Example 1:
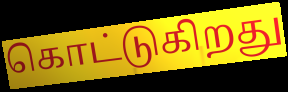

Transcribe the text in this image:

கொட்டுகிறது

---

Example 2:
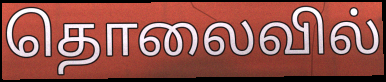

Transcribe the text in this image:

தொலைவில்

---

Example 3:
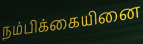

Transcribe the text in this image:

நம்பிக்கையினை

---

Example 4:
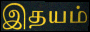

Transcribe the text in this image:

இதயம்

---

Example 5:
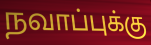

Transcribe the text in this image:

நவாப்புக்கு